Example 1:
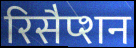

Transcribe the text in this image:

रिसैप्शन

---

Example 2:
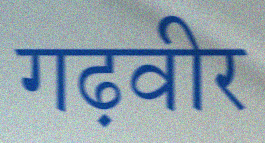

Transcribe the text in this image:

गढ़वीर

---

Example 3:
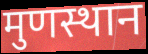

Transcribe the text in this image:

मुणस्थान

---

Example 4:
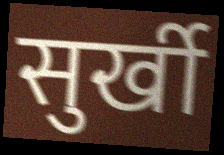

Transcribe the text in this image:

सुर्खी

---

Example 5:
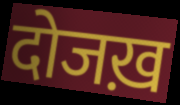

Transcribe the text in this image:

दोजख़